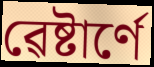
ৱেষ্টাৰ্ণে